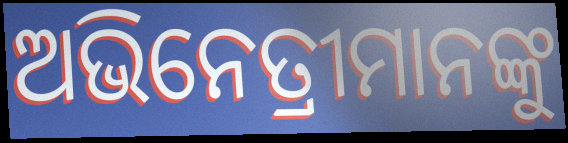
ଅଭିନେତ୍ରୀମାନଙ୍କୁ